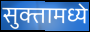
सुक्तामध्ये